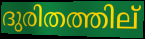
ദുരിതത്തില്